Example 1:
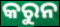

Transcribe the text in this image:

କରୁନ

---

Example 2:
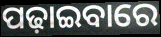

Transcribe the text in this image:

ପଢ଼ାଇବାରେ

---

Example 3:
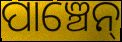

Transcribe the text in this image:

ପାଞ୍ଚେନ୍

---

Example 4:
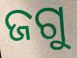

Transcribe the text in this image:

ଜଗୁ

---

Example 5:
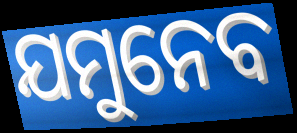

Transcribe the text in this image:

ଯମୁନେବ